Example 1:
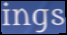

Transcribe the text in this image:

ings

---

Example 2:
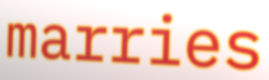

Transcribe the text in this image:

marries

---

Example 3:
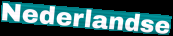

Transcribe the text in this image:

Nederlandse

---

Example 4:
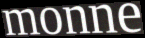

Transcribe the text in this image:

monne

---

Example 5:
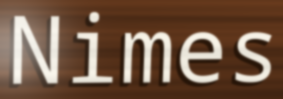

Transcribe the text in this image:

Nimes